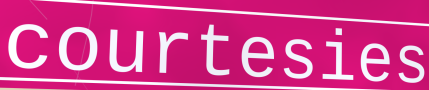
courtesies